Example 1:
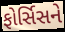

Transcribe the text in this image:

ફોર્સિસને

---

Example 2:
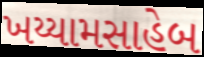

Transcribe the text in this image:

ખય્યામસાહેબ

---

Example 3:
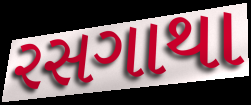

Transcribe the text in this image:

રસગાથા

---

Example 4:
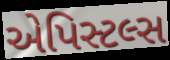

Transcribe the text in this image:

એપિસ્ટલ્સ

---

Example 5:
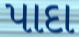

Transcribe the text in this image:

પાદા